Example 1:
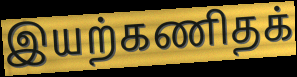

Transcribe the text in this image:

இயற்கணிதக்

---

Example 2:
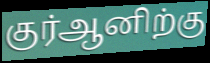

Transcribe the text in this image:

குர்ஆனிற்கு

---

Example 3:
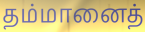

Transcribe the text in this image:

தம்மானைத்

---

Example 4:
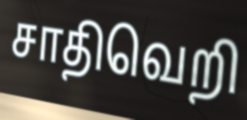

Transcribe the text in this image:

சாதிவெறி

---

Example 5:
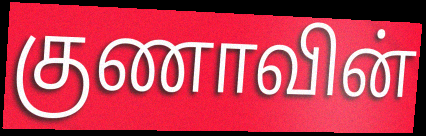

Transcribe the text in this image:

குணாவின்